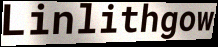
Linlithgow